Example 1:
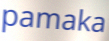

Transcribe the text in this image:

pamaka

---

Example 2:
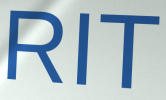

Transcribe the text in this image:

RIT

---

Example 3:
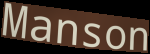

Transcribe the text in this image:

Manson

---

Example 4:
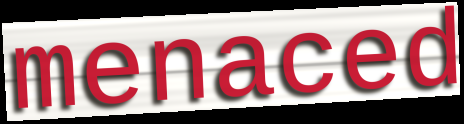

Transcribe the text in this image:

menaced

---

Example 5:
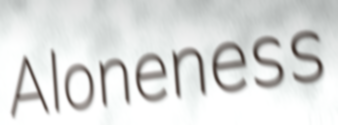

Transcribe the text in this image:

Aloneness